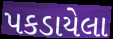
પકડાયેલા